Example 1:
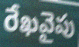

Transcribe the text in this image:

రేఖవైపు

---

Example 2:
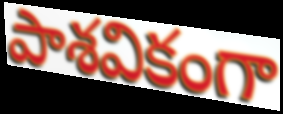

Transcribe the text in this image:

పాశవికంగా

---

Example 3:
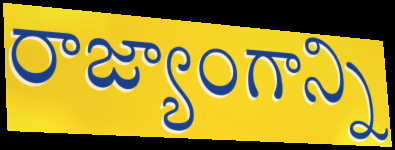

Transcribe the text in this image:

రాజ్యాంగాన్ని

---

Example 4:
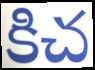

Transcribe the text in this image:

కిచ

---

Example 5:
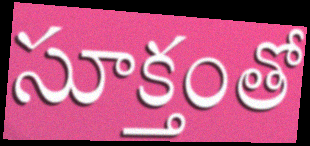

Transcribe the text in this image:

సూక్తంతో